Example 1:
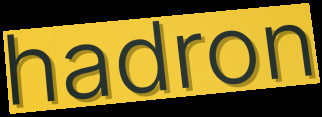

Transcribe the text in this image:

hadron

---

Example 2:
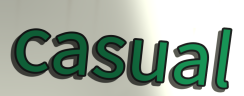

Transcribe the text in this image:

casual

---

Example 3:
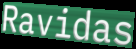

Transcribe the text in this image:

Ravidas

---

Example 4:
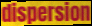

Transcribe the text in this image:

dispersion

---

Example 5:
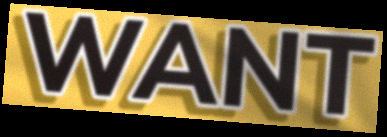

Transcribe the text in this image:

WANT